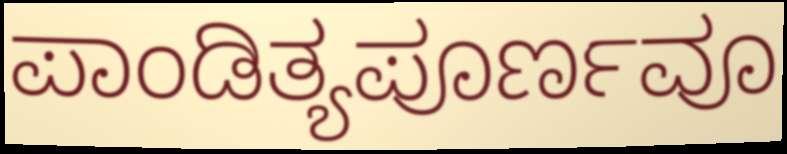
ಪಾಂಡಿತ್ಯಪೂರ್ಣವೂ